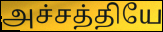
அச்சத்தியே